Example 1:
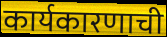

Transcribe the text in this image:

कार्यकारणाची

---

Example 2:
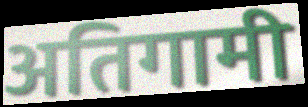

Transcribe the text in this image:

अतिगामी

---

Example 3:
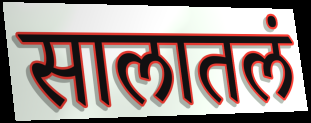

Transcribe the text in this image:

सालातलं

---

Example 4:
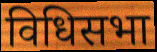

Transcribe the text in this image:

विधिसभा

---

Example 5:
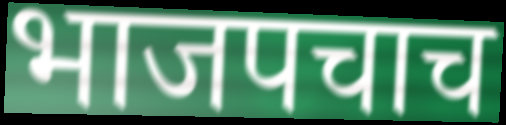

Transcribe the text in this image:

भाजपचाच